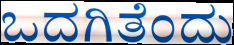
ಒದಗಿತೆಂದು